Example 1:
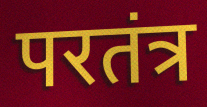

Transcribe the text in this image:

परतंत्र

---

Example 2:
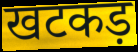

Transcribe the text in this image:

खटकड़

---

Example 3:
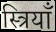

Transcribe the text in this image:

स्‍त्रियाँ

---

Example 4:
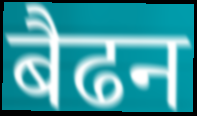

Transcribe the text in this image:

बैढन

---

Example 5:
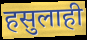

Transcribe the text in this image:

हसुलाही